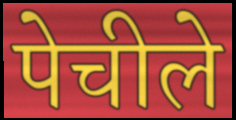
पेचीले